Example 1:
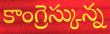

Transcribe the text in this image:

కాంగ్రెస్కున్న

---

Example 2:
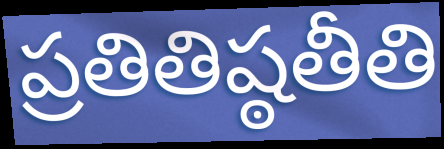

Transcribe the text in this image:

ప్రతితిష్ఠతీతి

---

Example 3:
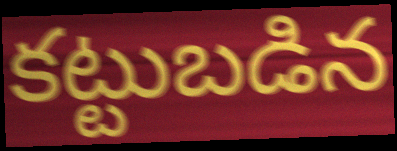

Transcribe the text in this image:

కట్టుబడిన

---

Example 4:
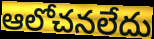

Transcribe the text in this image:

ఆలోచనలేదు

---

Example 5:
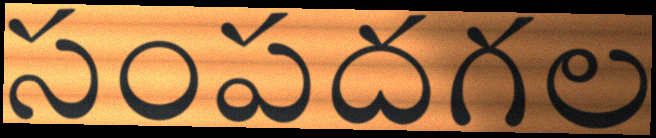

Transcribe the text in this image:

సంపదగల